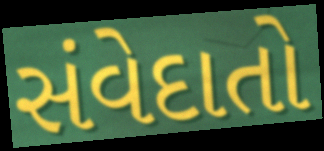
સંવેદાતો